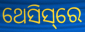
ଥେସିସ୍‌ରେ